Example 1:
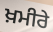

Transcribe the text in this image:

ਖ਼ਮੀਰੇ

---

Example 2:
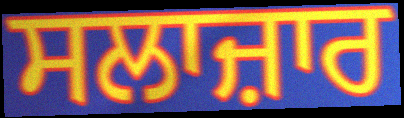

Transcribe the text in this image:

ਸਲਾਜ਼ਾਰ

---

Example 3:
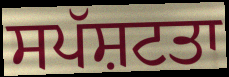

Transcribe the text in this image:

ਸਪੱਸ਼ਟਤਾ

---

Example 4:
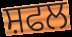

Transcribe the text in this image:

ਸ਼ਫਲ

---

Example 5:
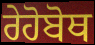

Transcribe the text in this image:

ਰੇਹੋਬੋਥ